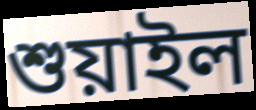
শুয়াইল